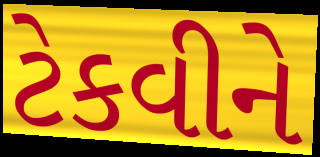
ટેકવીને